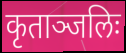
कृताञ्जलिः